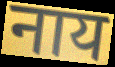
नाय